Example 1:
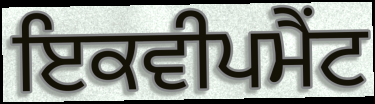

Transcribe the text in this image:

ਇਕਵੀਪਮੈਂਟ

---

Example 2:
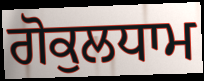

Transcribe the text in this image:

ਗੋਕੁਲਧਾਮ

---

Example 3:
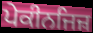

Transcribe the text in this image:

ਪੇਕੀਨਜਿਜ਼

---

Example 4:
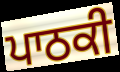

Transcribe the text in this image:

ਪਾਠਕੀ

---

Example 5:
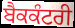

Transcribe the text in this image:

ਬੈਕਕੰਟਰੀ